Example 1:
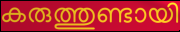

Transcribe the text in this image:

കരുത്തുണ്ടായി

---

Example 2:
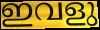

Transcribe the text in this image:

ഇവളു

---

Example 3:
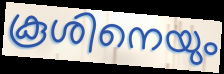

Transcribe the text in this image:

കൂശിനെയും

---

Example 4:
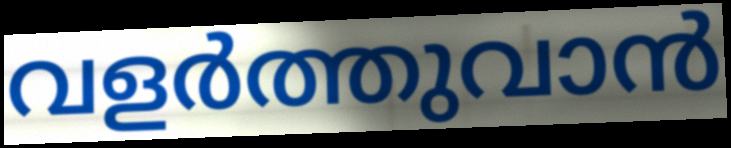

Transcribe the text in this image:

വളർത്തുവാൻ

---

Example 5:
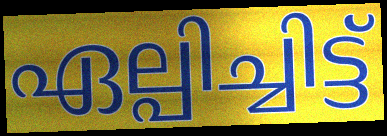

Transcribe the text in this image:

ഏല്പിച്ചിട്ട്